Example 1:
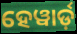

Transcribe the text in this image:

ହେୱାର୍ଡ଼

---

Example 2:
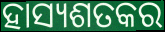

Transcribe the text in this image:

ହାସ୍ୟଶତକର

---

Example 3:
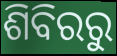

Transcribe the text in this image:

ଶିବିରରୁ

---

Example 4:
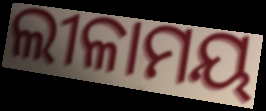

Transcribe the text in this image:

ଲୀଳାମୟ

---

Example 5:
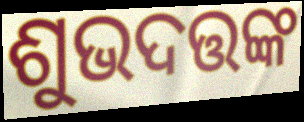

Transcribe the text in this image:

ଶୁଭଦତ୍ତଙ୍କ